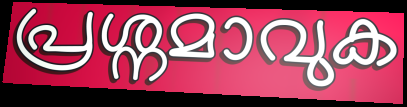
പ്രശ്നമാവുക